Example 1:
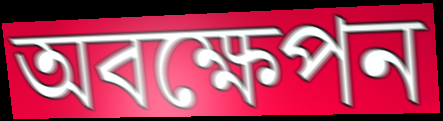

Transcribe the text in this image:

অবক্ষেপন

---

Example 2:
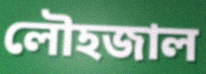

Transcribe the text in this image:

লৌহজাল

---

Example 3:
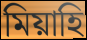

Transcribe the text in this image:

মিয়াহি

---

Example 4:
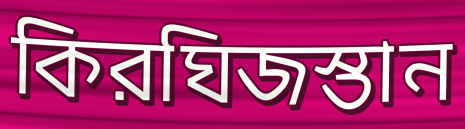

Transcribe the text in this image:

কিরঘিজস্তান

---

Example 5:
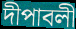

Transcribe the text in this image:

দীপাবলী